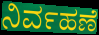
ನಿರ್ವಹಣೆ